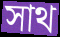
সাথ